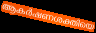
ആകർഷണശക്തിയെ